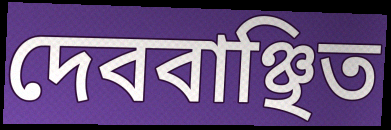
দেববাঞ্ছিত